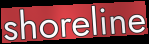
shoreline